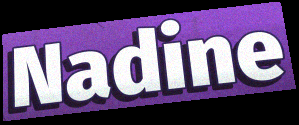
Nadine